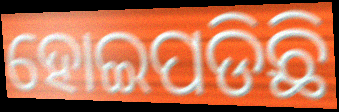
ହୋଇପଡିଛି